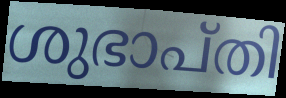
ശുഭാപ്തി